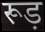
रूड़